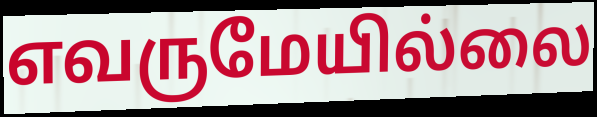
எவருமேயில்லை